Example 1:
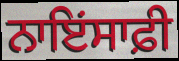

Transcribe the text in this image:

ਨਾਇਂਸਾਫ਼ੀ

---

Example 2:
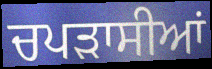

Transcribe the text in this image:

ਚਪੜਾਸੀਆਂ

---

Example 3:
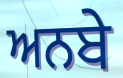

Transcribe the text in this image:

ਅਨਬੇ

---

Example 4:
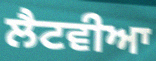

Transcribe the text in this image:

ਲੈਟਵੀਆ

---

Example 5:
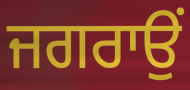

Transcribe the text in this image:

ਜਗਰਾਉਂ